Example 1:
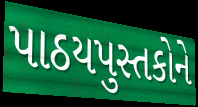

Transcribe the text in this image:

પાઠયપુસ્તકોને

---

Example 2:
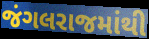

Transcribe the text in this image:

જંગલરાજમાંથી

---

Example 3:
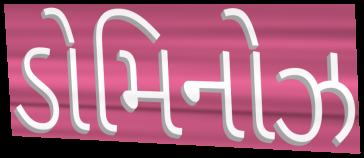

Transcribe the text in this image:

ડોમિનોઝ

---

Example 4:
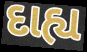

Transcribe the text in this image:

દાહ્ય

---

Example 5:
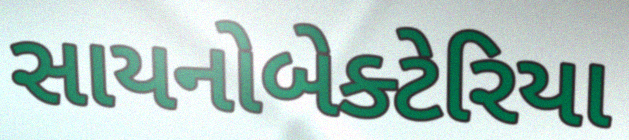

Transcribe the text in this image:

સાયનોબેક્ટેરિયા